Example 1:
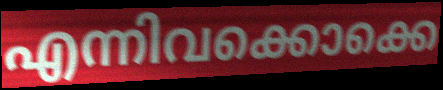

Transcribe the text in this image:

എന്നിവക്കൊക്കെ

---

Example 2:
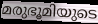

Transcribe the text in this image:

മരുഭൂമിയുടെ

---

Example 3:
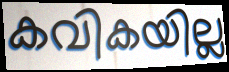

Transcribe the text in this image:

കവികയില്ല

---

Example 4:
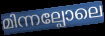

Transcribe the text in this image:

മിന്നല്പോലെ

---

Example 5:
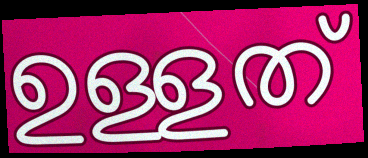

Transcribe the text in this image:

ഉള്ളത്